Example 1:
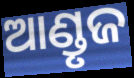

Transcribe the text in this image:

ଆଣ୍ଡୃଜ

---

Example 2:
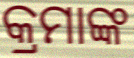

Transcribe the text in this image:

କ୍ରମାଙ୍କ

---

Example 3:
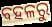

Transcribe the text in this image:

ବହଳରୁ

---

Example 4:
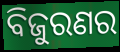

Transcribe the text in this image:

ବିଜୁରଣର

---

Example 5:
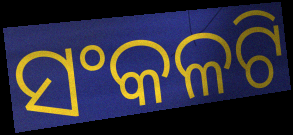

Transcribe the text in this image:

ସଂକଳଟି